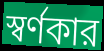
স্বর্ণকার